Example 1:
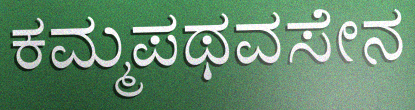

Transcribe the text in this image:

ಕಮ್ಮಪಥವಸೇನ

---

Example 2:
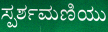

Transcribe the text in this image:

ಸ್ಪರ್ಶಮಣಿಯು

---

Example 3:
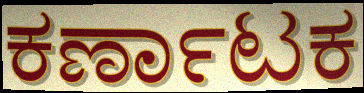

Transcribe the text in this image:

ಕರ್ಣಾಟಕ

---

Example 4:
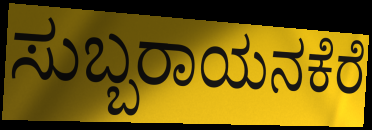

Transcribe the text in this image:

ಸುಬ್ಬರಾಯನಕೆರೆ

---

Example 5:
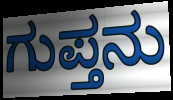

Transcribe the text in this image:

ಗುಪ್ತನು